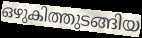
ഒഴുകിത്തുടങ്ങിയ